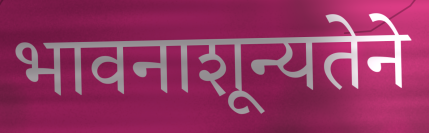
भावनाशून्यतेने